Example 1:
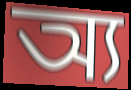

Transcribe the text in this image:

অ্য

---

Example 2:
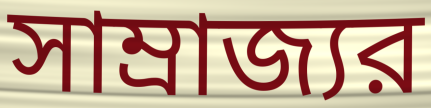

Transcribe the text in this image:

সাম্রাজ্যর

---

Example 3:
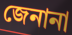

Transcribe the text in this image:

জেনানা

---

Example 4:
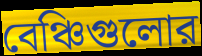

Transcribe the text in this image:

বেঞ্চিগুলোর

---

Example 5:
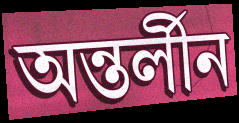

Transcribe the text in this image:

অন্তর্লীন